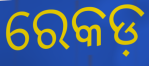
ରେକଡ଼